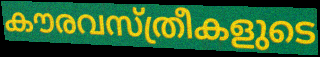
കൗരവസ്ത്രീകളുടെ